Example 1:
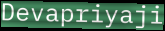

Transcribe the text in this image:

Devapriyaji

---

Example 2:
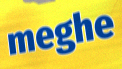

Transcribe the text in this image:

meghe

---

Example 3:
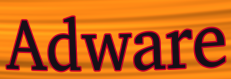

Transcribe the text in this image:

Adware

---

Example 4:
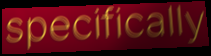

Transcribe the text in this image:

specifically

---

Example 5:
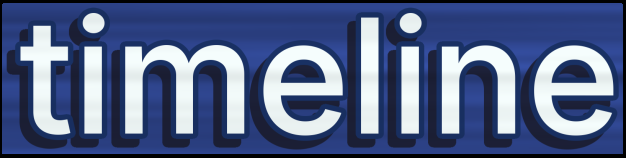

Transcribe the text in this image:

timeline